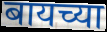
बायच्या